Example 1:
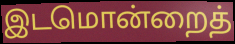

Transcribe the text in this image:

இடமொன்றைத்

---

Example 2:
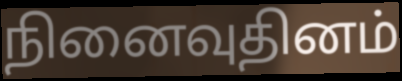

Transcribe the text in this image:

நினைவுதினம்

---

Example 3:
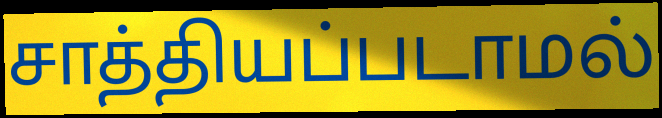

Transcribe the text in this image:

சாத்தியப்படாமல்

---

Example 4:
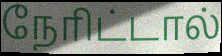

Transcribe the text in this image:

நேரிட்டால்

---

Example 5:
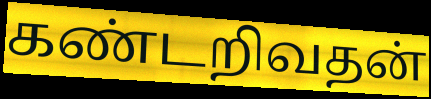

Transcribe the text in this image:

கண்டறிவதன்